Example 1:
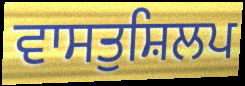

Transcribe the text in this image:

ਵਾਸਤੁਸ਼ਿਲਪ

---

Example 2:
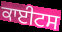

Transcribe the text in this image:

ਕਾਈਟਸ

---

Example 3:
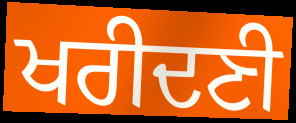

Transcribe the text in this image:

ਖਰੀਦਣੀ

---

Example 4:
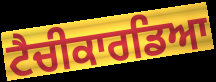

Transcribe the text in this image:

ਟੈਚੀਕਾਰਡਿਆ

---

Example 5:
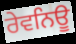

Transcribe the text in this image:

ਰੇਵਨਿਊ